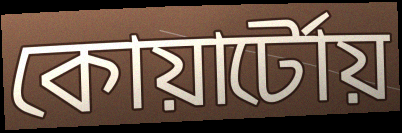
কোয়ার্টোয়